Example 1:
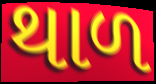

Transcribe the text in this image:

થાળ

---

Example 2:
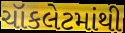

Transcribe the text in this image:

ચૉકલેટમાંથી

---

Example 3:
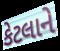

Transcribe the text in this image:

કેટલાને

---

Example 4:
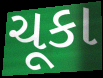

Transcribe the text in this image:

ચૂકા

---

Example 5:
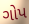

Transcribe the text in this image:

ગોપ